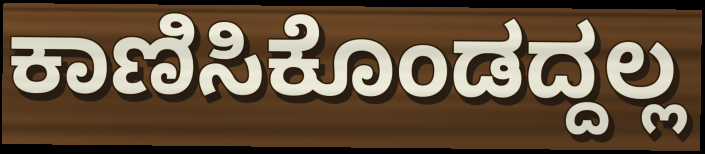
ಕಾಣಿಸಿಕೊಂಡದ್ದಲ್ಲ